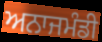
ਅਨਾਜਮੰਡੀ